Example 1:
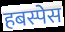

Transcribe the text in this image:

हबस्पेस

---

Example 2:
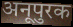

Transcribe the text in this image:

अनूपुरक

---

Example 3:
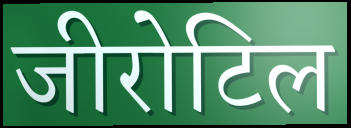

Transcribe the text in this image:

जीरोटिल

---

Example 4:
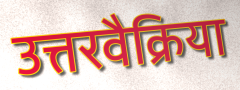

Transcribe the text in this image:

उत्तरवैक्रिया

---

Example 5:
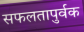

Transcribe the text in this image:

सफलतापुर्वक